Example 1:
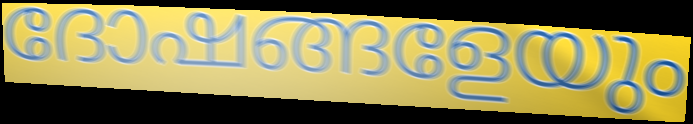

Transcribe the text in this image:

ദോഷങ്ങളേയും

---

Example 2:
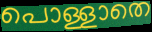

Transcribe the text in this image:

പൊള്ളാതെ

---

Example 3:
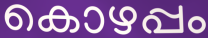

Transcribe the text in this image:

കൊഴപ്പം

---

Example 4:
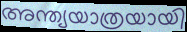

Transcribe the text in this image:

അന്ത്യയാത്രയായി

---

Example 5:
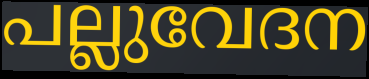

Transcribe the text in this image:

പല്ലുവേദന